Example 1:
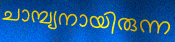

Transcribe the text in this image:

ചാമ്പ്യനായിരുന്ന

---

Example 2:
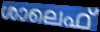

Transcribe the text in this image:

ശാലെഫ്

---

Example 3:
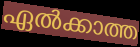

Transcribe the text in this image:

ഏൽക്കാത്ത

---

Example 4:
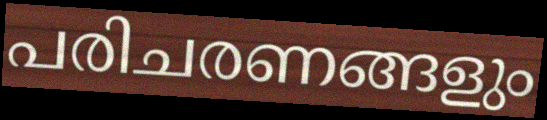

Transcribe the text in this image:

പരിചരണങ്ങളും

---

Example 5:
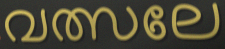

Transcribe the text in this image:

വത്സലേ